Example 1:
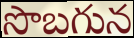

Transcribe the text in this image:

సొబగున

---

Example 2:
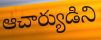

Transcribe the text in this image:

ఆచార్యుడిని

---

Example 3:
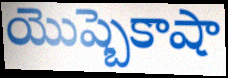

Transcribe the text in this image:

యొష్బెకాషా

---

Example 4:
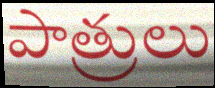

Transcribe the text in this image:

పాత్రులు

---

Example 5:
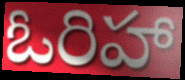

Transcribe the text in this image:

ఓరిహా